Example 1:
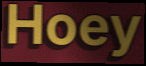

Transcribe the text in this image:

Hoey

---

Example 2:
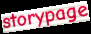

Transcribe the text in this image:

storypage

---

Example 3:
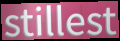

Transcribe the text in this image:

stillest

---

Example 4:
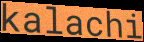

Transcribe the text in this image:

kalachi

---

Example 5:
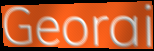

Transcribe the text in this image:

Georai